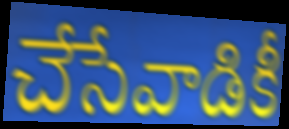
చేసేవాడికీ